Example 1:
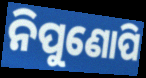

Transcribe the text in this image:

ନିପୁଣୋପି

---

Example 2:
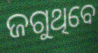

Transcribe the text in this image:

ଜଗୁଥିବେ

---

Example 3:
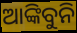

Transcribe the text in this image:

ଆଙ୍କିବୁନି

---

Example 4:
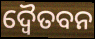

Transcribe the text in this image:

ଦ୍ବୈତବନ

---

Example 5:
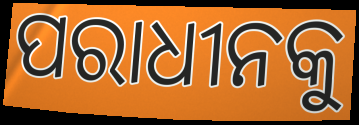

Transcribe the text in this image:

ପରାଧୀନକୁ